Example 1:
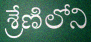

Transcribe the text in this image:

శ్రేణిలోని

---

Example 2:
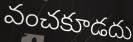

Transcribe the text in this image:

వంచకూడదు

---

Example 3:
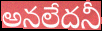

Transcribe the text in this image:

అనలేదనీ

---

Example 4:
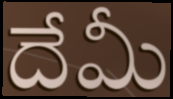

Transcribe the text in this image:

దేమీ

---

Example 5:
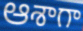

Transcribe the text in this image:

ఆశాగా